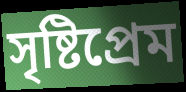
সৃষ্টিপ্রেম